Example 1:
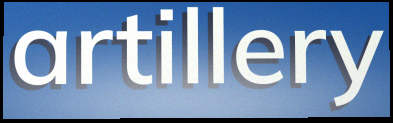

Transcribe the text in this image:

artillery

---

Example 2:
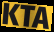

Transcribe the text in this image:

KTA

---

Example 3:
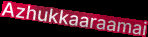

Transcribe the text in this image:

Azhukkaaraamai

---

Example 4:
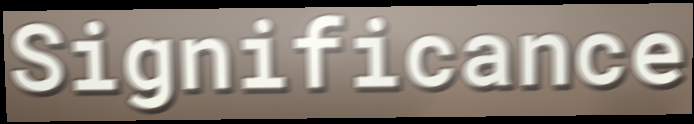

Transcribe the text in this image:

Significance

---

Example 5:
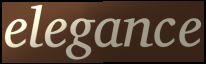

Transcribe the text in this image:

elegance